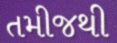
તમીજથી